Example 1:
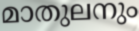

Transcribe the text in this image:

മാതുലനും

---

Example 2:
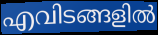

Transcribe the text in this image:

എവിടങ്ങളിൽ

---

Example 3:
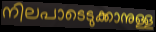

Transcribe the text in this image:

നിലപാടെടുക്കാനുള്ള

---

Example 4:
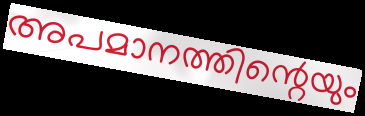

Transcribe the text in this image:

അപമാനത്തിന്റെയും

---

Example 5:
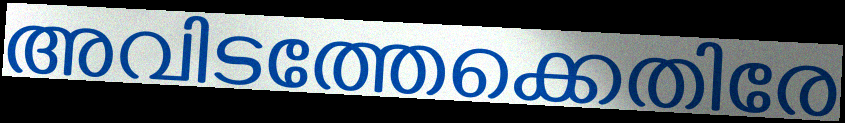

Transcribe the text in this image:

അവിടത്തേക്കെതിരേ